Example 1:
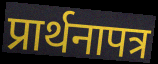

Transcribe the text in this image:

प्रार्थनापत्र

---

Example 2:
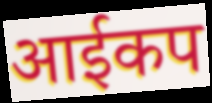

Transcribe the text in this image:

आईकप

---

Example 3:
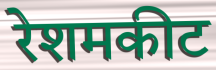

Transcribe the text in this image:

रेशमकीट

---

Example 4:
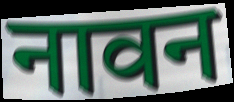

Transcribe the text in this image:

नावन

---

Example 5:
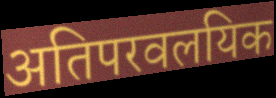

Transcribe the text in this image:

अतिपरवलयिक